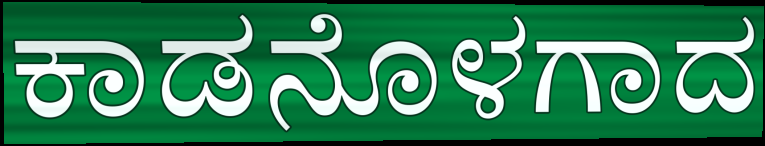
ಕಾಡನೊಳಗಾದ